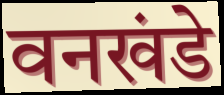
वनखंडे